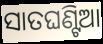
ସାତଘଣ୍ଟିଆ